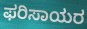
ಫರಿಸಾಯರ